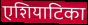
एशियाटिका